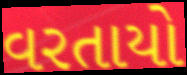
વરતાયો